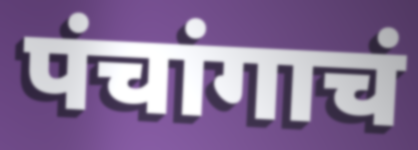
पंचांगाचं